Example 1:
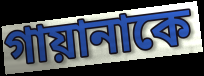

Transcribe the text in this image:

গায়ানাকে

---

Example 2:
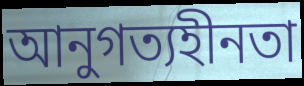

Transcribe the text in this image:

আনুগত্যহীনতা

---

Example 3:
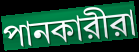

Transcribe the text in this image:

পানকারীরা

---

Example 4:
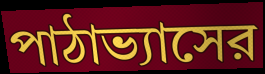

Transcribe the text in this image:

পাঠাভ্যাসের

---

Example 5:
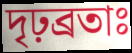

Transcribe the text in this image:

দৃঢ়ব্রতাঃ